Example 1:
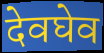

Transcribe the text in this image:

देवघेव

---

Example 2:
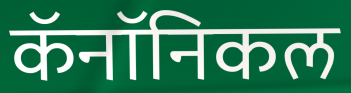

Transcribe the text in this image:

कॅनॉनिकल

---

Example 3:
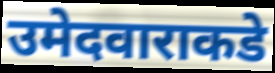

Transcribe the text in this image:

उमेदवाराकडे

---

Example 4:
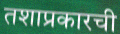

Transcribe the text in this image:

तशाप्रकारची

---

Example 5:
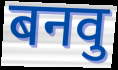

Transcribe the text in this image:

बनवु